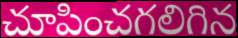
చూపించగలిగిన